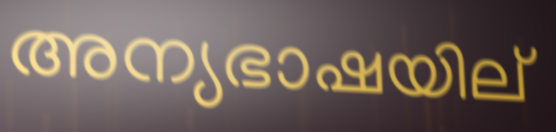
അന്യഭാഷയില്